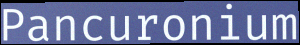
Pancuronium